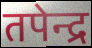
तपेन्द्र